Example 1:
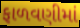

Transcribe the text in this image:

ફાળવણીમાં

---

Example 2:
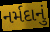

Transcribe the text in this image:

નર્મદાનું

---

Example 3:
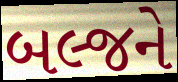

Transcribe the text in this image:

બલ્જને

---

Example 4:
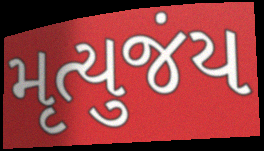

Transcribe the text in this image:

મૃત્યુજંય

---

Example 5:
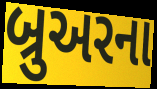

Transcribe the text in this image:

બ્રુઅરના